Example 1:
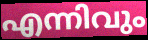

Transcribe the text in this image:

എന്നിവും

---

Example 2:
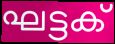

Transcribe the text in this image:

ഘട്ടക്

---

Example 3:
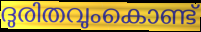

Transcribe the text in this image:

ദുരിതവുംകൊണ്ട്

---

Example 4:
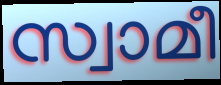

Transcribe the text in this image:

സ്വാമീ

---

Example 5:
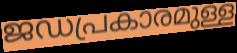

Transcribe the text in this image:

ജഡപ്രകാരമുള്ള